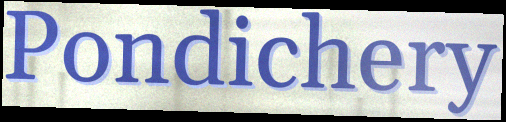
Pondichery